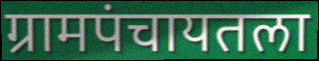
ग्रामपंचायतला